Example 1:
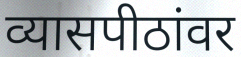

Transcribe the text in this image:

व्यासपीठांवर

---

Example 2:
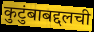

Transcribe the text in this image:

कुटुंबाबद्दलची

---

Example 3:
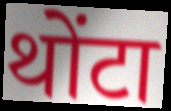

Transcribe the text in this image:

थोंटा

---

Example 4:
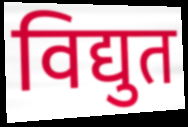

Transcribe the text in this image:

विद्युत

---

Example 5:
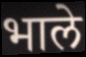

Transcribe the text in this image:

भाले